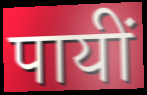
पायीं